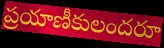
ప్రయాణీకులందరూ